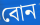
বোন